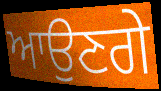
ਆਉਣਗੇ